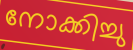
നോക്കിച്ചു